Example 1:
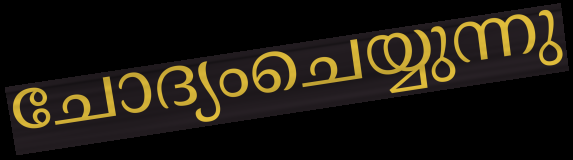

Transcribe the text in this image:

ചോദ്യംചെയ്യുന്നു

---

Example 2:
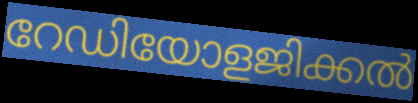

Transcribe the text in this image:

റേഡിയോളജിക്കൽ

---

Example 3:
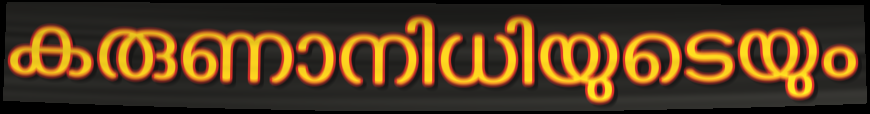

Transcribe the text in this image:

കരുണാനിധിയുടെയും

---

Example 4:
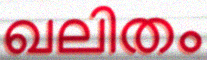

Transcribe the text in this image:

ഖലിതം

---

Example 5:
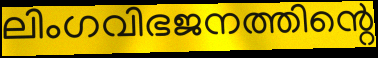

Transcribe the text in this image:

ലിംഗവിഭജനത്തിന്റെ